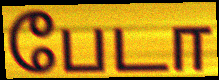
பேடா